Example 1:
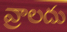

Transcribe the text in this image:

వ్రాలదు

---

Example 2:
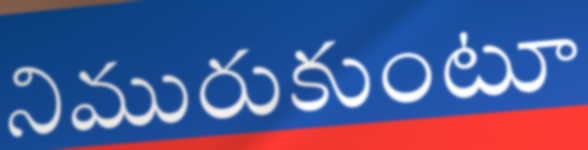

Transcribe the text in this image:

నిమురుకుంటూ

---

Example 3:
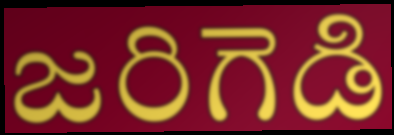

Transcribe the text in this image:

జరిగెడి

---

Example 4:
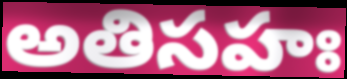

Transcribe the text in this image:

అతిసహః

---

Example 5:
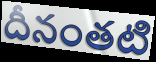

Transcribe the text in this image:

దీనంతటి